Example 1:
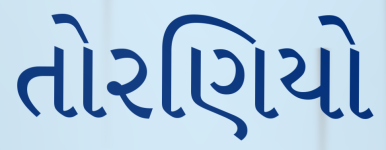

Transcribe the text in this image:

તોરણિયો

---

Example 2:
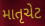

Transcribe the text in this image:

માતૃચેટ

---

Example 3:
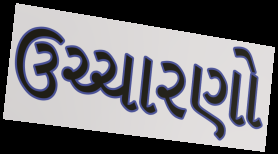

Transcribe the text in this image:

ઉચ્ચારણો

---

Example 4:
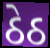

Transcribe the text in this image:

ઠેઠ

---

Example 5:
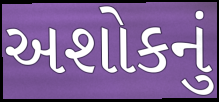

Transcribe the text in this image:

અશોકનું